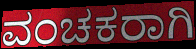
ವಂಚಕರಾಗಿ